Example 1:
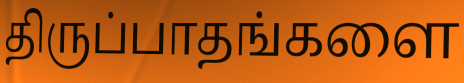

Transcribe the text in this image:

திருப்பாதங்களை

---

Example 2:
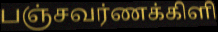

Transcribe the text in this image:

பஞ்சவர்ணக்கிளி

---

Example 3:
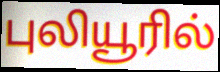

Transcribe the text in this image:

புலியூரில்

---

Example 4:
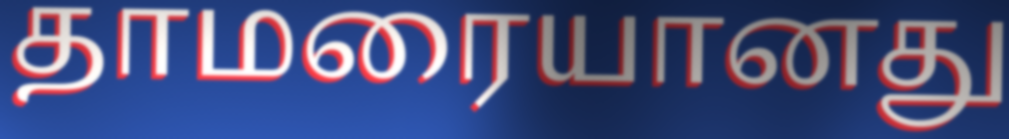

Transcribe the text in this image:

தாமரையானது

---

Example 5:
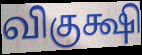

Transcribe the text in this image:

விகுக்ஷி